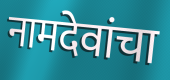
नामदेवांचा